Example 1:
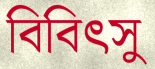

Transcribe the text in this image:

বিবিৎসু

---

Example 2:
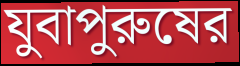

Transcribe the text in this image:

যুবাপুরুষের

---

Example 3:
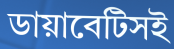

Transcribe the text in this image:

ডায়াবেটিসই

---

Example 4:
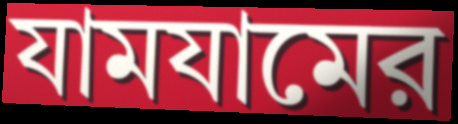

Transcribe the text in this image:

যামযামের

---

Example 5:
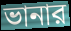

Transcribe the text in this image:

ভানার